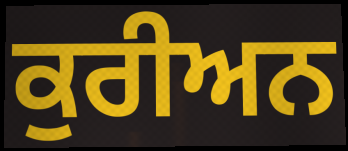
ਕੁਰੀਅਨ